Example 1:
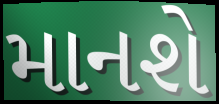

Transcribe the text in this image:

માનશે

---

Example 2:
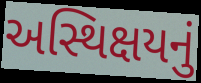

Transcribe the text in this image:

અસ્થિક્ષયનું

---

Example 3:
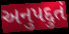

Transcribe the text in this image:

અનુપદ્દુતં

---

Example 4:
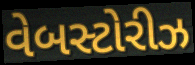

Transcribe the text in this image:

વેબસ્ટોરીઝ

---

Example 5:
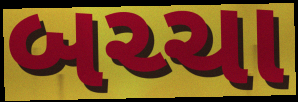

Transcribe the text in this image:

બચ્ચા